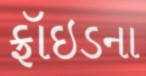
ફ્રૉઇડના